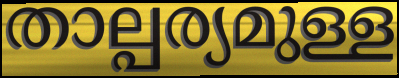
താല്പര്യമുള്ള